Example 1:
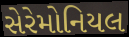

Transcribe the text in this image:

સેરેમોનિયલ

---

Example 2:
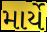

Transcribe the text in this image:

માર્યે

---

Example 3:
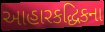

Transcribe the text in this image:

આહારકદ્ધિકના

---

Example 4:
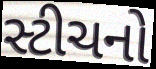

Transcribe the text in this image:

સ્ટીચનો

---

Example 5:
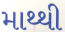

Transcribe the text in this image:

માથ્થી